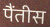
पैंतीस